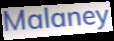
Malaney